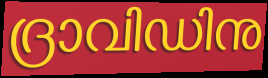
ദ്രാവിഡിനു